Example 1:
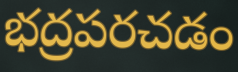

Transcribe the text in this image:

భద్రపరచడం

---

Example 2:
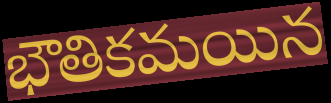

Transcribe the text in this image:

భౌతికమయిన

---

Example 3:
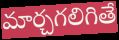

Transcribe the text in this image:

మార్చగలిగితే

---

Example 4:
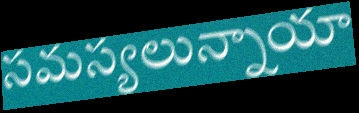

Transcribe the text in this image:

సమస్యలున్నాయా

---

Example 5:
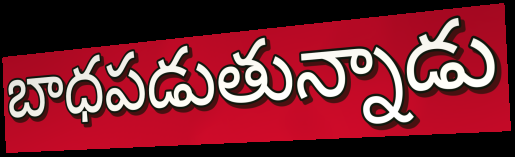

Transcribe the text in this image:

బాధపడుతున్నాడు